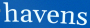
havens